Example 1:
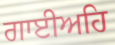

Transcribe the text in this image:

ਗਾਈਅਹਿ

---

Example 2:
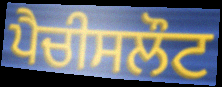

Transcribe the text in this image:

ਪੈਚੀਸਲੌਟ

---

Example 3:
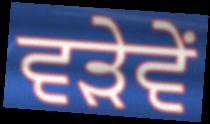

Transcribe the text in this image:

ਵੜੇਵੇਂ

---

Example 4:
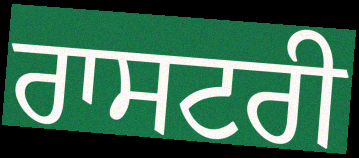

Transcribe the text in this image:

ਰਾਸਟਰੀ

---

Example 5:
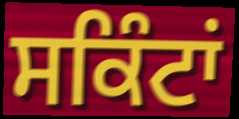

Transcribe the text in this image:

ਸਕਿੰਟਾਂ